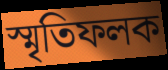
স্মৃতিফলক